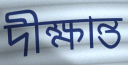
দীক্ষান্ত